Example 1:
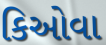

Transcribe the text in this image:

કિઓવા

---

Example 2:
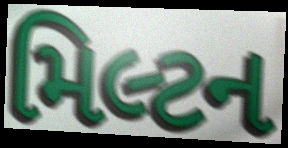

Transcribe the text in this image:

મિલ્ટન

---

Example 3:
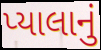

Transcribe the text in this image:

પ્યાલાનું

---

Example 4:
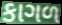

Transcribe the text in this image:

કાગળ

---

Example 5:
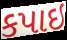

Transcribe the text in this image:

કપાઇ